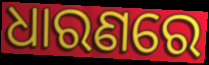
ଧାରଣରେ